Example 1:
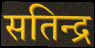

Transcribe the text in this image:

सतिन्द्र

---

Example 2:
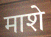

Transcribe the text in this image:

माशे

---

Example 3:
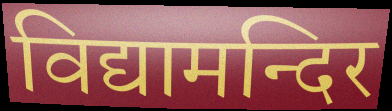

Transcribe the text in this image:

विद्यामन्दिर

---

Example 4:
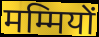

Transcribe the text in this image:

मम्मियों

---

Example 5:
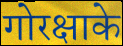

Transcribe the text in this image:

गोरक्षाके